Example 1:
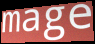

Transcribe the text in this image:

mage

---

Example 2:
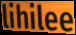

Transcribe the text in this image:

lihilee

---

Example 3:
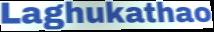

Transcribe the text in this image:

Laghukathao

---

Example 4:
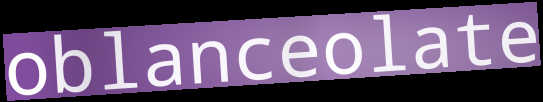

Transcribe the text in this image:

oblanceolate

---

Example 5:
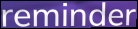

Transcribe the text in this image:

reminder